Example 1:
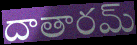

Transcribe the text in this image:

దాతారమ్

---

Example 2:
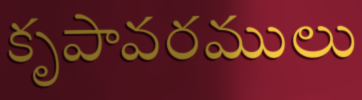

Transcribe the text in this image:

కృపావరములు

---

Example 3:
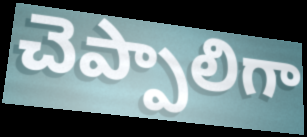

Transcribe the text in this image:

చెప్పాలిగా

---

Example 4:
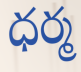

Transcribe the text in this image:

ధర్మ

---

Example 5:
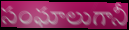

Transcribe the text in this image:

సంఘాలుగానీ